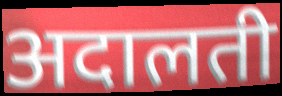
अदालती